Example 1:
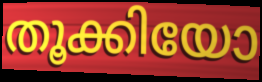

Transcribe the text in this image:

തൂക്കിയോ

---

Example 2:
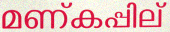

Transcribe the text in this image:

മണ്കപ്പില്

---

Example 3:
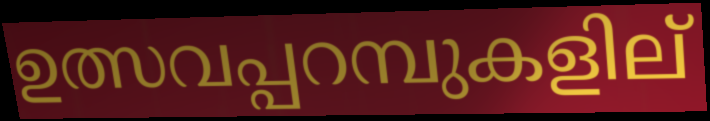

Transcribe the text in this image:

ഉത്സവപ്പറമ്പുകളില്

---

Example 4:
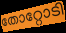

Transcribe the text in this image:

തോറ്റോടി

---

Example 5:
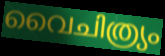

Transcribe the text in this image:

വൈചിത്ര്യം